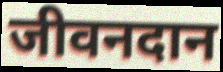
जीवनदान